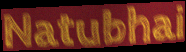
Natubhai